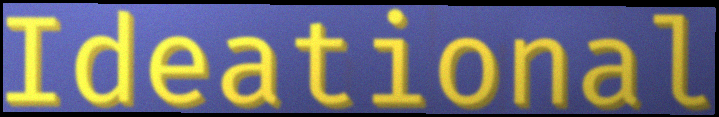
Ideational